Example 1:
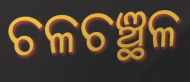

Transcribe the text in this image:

ଚଳଚଞ୍ଛଳ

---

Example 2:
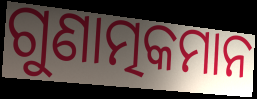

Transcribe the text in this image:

ଗୁଣାତ୍ମକମାନ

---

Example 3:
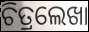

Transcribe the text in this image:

ଚିତ୍ରଲେଖା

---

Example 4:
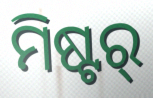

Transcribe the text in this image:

ମିଷ୍ଟର୍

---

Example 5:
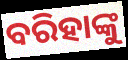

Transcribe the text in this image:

ବରିହାଙ୍କୁ